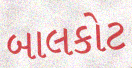
બાલકોટ